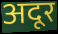
अदूर